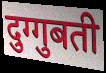
दुग्गुबती